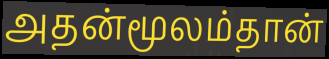
அதன்மூலம்தான்